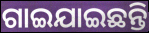
ଗାଇଯାଇଛନ୍ତି